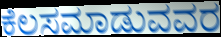
ಕೆಲಸಮಾಡುವವರ